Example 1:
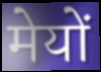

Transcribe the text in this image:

मेयों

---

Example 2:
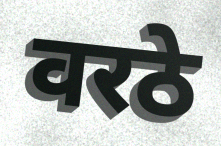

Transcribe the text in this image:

वरठे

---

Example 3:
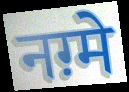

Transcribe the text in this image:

नग़्मे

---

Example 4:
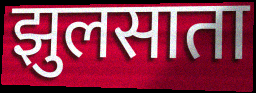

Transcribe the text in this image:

झुलसाता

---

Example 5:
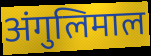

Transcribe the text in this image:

अंगुलिमाल